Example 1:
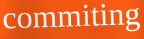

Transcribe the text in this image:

commiting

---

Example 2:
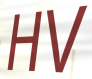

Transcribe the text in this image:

HV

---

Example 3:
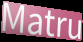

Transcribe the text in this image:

Matru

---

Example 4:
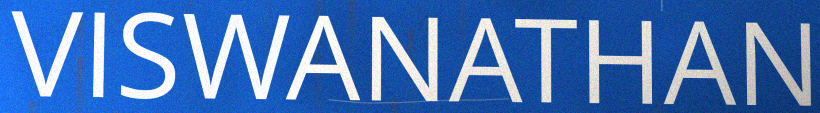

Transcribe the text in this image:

VISWANATHAN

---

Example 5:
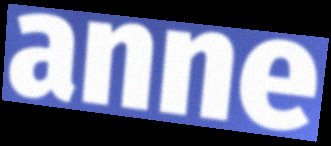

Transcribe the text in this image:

anne